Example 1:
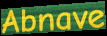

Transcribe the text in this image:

Abnave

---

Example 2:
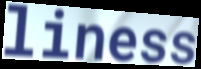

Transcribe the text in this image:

liness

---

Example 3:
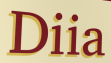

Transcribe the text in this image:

Diia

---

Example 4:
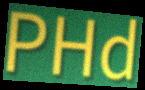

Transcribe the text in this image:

PHd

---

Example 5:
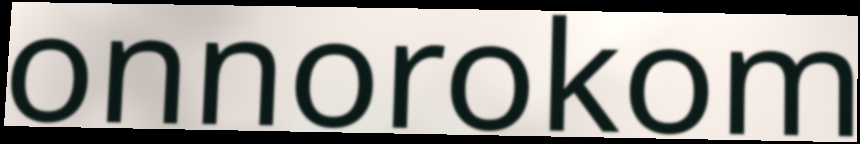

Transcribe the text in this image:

onnorokom